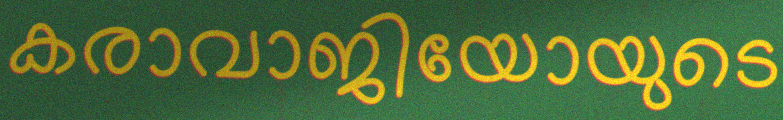
കരാവാജിയോയുടെ